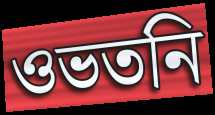
ওভতনি